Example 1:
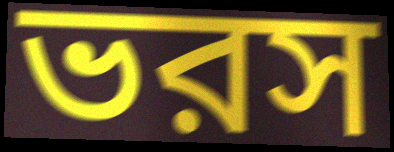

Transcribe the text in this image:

ভরস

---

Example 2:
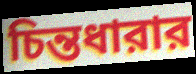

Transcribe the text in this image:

চিন্তধারার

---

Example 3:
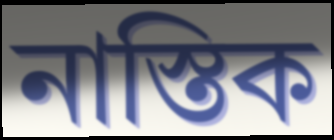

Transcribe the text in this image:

নাস্তিক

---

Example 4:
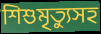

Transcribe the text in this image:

শিশুমৃত্যুসহ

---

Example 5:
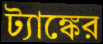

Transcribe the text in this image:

ট্যাঙ্কের